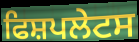
ਫਿਸ਼ਪਲੇਟਸ